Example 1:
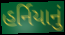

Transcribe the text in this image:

હર્નિયાનું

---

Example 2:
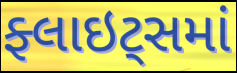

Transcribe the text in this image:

ફ્લાઇટ્સમાં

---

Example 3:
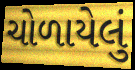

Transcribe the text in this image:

ચોળાયેલું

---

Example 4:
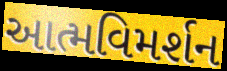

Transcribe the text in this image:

આત્મવિમર્શન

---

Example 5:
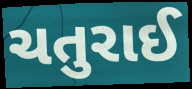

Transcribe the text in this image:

ચતુરાઈ